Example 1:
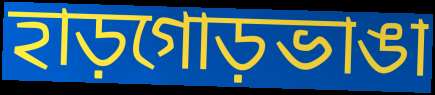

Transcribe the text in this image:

হাড়গোড়ভাঙা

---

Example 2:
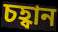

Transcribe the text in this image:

চহ্বান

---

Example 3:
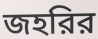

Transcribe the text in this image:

জহরির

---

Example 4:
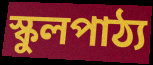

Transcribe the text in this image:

স্কুলপাঠ্য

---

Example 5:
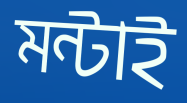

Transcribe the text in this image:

মন্টাই